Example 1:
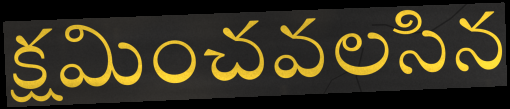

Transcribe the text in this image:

క్షమించవలసిన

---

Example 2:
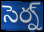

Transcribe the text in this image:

సెర్న్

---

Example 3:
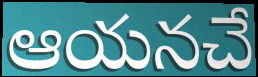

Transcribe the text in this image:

ఆయనచే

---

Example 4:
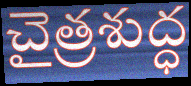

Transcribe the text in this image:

చైత్రశుద్ధ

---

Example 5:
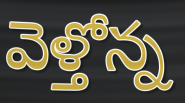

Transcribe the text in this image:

వెళ్తోన్న